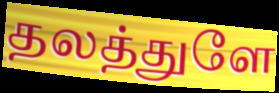
தலத்துளே